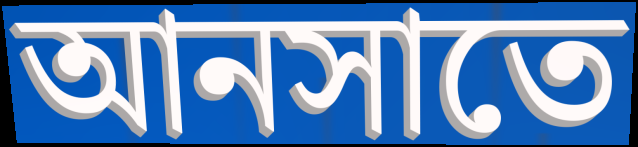
আনসাতে